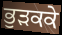
ਭੁੜਕਕੇ